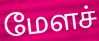
மேளச்